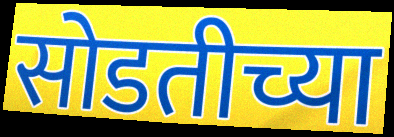
सोडतीच्या